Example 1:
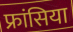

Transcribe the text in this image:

फ्रांसिया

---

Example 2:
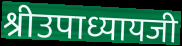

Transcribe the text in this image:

श्रीउपाध्यायजी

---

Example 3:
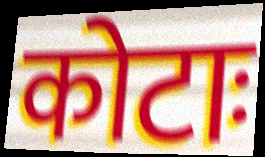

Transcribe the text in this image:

कोटाः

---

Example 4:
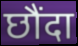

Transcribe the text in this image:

छौंदा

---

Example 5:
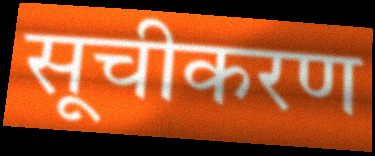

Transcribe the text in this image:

सूचीकरण